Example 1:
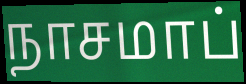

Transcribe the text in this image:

நாசமாப்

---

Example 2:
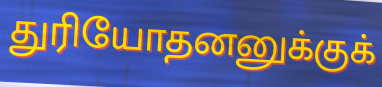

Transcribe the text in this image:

துரியோதனனுக்குக்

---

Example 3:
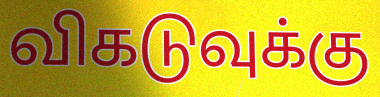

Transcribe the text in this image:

விகடுவுக்கு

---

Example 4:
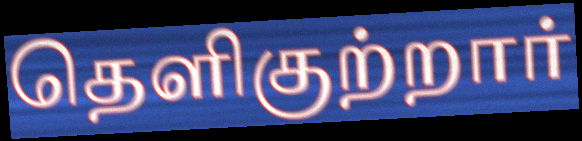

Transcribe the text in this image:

தெளிகுற்றார்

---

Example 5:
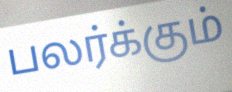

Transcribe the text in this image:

பலர்க்கும்